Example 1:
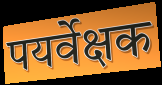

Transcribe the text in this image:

पयर्वेक्षक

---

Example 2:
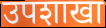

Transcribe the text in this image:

उपशाखा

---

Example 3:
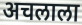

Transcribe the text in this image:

अचलाला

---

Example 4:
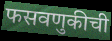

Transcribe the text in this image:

फसवणुकीची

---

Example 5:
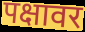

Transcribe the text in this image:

पक्षावर